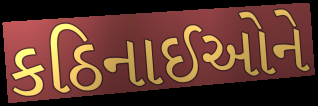
કઠિનાઈઓને